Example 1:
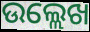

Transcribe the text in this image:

ଉଲ୍ଲେଖ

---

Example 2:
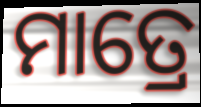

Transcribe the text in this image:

ମାତ୍ରେ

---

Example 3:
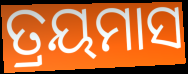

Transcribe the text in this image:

ତ୍ରୟମାସ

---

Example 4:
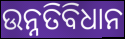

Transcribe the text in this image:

ଉନ୍ନତିବିଧାନ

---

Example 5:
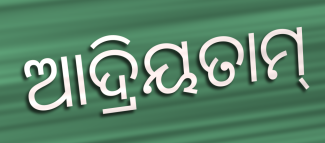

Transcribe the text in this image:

ଆଦ୍ରିୟତାମ୍